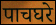
पाचघरे